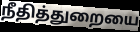
நீதித்துறையை